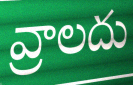
వ్రాలదు